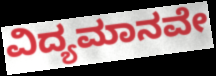
ವಿದ್ಯಮಾನವೇ